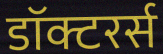
डॉक्टरर्स